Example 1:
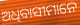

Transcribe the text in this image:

ଅଧିବାସୀମାନେ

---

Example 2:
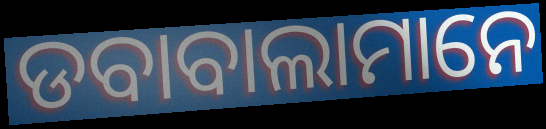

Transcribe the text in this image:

ଡବାବାଲାମାନେ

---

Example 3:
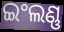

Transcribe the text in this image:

ଇଂଲଣ୍ଣ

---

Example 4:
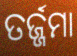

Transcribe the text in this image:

ତର୍ଜ୍ଜମା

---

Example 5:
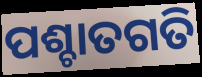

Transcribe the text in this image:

ପଶ୍ଚାତଗତି